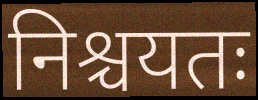
निश्चयतः